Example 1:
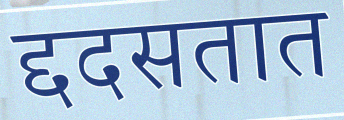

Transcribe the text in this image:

द्ददसतात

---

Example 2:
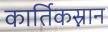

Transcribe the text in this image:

कार्तिकस्नान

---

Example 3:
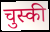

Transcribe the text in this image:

चुस्की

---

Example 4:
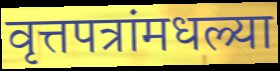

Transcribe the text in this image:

वृत्तपत्रांमधल्या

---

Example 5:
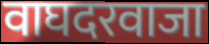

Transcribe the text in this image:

वाघदरवाजा